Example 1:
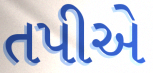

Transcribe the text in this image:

તપીએ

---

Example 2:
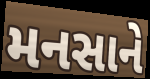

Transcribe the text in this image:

મનસાને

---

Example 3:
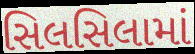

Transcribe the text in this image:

સિલસિલામાં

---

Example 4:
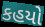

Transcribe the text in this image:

કહયો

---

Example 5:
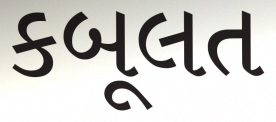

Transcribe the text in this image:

કબૂલત